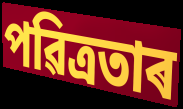
পৱিত্ৰতাৰ